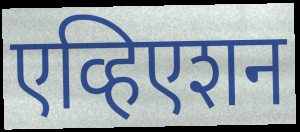
एव्हिएशन